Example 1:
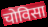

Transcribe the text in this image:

चोविसा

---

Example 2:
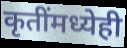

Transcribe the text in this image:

कृतींमध्येही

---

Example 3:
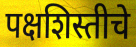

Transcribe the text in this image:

पक्षशिस्तीचे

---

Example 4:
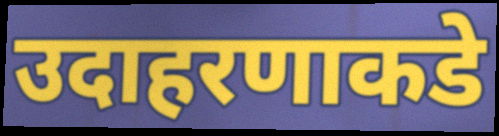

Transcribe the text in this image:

उदाहरणाकडे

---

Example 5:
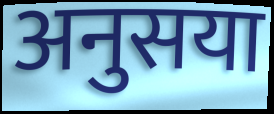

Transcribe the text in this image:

अनुसया